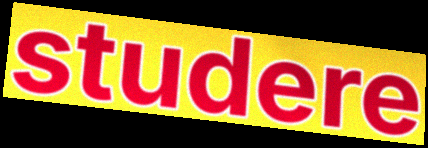
studere